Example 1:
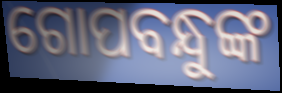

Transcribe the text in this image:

ଗୋପବନ୍ଧୁଙ୍କ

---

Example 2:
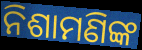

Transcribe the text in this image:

ନିଶାମଣିଙ୍କ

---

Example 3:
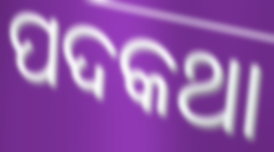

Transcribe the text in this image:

ପଦକଥା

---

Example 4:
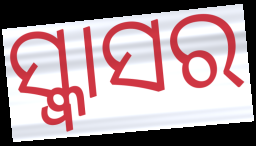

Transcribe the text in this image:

ସ୍କ୍ବାସର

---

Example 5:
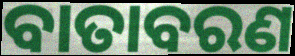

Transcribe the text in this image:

ବାତାବରଣ